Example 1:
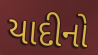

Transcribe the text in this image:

યાદીનો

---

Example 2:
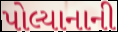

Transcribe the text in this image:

પોલ્યાનાની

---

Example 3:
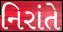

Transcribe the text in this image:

નિરાંતે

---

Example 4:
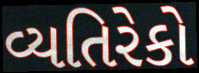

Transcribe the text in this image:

વ્યતિરેકો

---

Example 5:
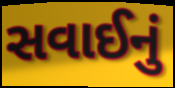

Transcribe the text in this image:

સવાઈનું